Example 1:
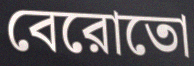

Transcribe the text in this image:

বেরোতো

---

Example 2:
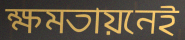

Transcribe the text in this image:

ক্ষমতায়নেই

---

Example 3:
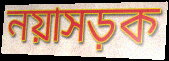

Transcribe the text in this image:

নয়াসড়ক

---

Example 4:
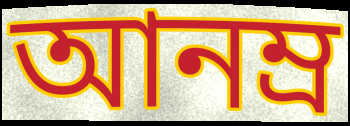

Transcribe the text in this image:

আনম্র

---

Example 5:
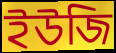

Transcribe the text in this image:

ইউজি